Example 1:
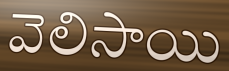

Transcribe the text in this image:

వెలిసాయి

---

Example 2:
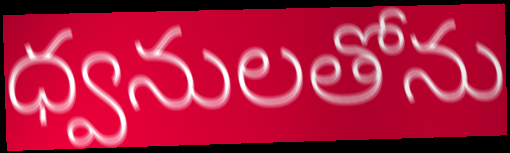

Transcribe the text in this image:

ధ్వనులతోను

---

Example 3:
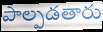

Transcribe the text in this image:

పాల్పడతారు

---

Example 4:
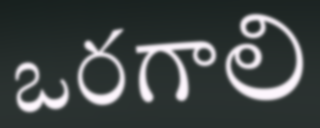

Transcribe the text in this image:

ఒరగాలి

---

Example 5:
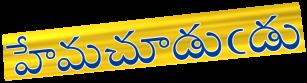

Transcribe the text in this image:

హేమచూడుఁడు